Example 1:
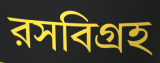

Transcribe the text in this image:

রসবিগ্রহ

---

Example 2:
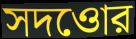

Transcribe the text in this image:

সদওোর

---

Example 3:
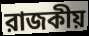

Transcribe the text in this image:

রাজকীয়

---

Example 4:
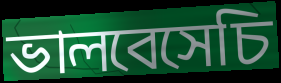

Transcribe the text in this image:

ভালবেসেচি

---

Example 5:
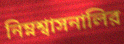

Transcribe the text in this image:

নিম্নশ্বাসনালির